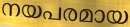
നയപരമായ